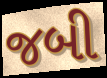
જબી